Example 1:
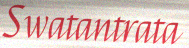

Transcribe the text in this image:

Swatantrata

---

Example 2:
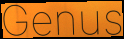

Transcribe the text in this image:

Genus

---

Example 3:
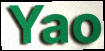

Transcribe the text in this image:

Yao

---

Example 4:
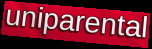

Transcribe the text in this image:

uniparental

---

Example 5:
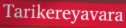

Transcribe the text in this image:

Tarikereyavara